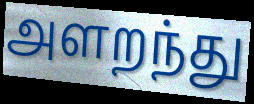
அளறந்து